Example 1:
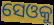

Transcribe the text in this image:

ସେଓକୁ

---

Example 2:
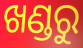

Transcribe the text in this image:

ଖଣ୍ଡରୁ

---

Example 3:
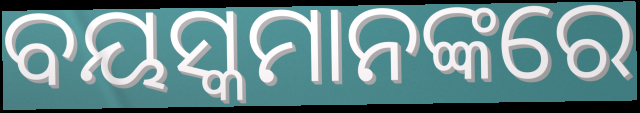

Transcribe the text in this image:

ବୟସ୍କମାନଙ୍କରେ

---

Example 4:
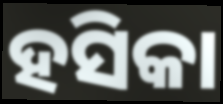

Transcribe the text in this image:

ହସିକା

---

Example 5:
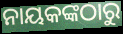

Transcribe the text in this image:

ନାୟକଙ୍କଠାରୁ